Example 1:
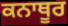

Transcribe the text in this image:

ਕਨਾਥੂਰ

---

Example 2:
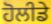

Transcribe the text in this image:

ਹੋਲੀਡੇ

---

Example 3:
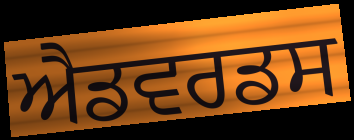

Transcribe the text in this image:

ਐਡਵਰਡਸ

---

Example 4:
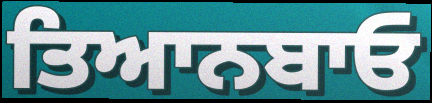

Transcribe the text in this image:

ਤਿਆਨਬਾਓ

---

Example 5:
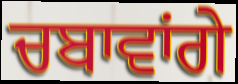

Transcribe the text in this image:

ਚਬਾਵਾਂਗੇ